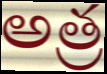
అత్ర